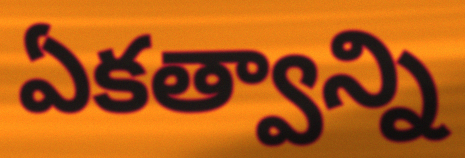
ఏకత్వాన్ని